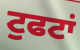
ਟੁਫਟਾਂ